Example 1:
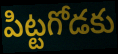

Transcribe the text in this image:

పిట్టగోడకు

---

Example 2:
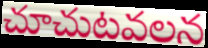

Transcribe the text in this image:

చూచుటవలన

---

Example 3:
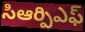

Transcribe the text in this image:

సిఆర్పిఎఫ్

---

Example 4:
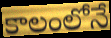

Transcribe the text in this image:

కాలంలోనే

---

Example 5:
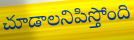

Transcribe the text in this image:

చూడాలనిపిస్తోంది